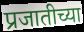
प्रजातीच्या